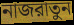
নাজরাতুন